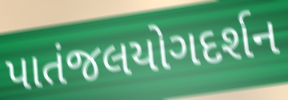
પાતંજલયોગદર્શન